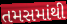
તમસમાંથી